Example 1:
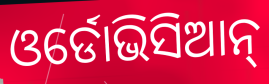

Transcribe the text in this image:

ଓର୍ଡୋଭିସିଆନ୍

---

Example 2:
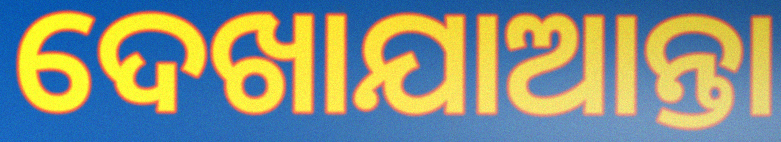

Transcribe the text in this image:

ଦେଖାଯାଆନ୍ତା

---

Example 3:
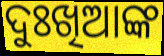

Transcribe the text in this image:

ଦୁଃଖିଆଙ୍କ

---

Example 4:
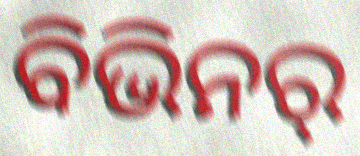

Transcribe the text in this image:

ବିଭିନର୍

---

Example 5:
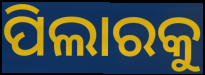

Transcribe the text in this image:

ପିଲାରକୁ